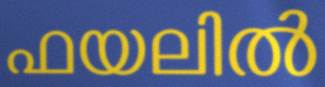
ഫയലിൽ